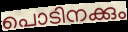
പൊടിനക്കും